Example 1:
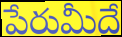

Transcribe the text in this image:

పేరుమీదే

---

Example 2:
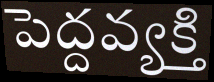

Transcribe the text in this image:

పెద్దవ్యక్తి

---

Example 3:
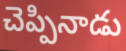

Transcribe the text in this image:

చెప్పినాడు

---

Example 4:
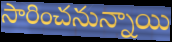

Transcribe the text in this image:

సారించనున్నాయి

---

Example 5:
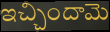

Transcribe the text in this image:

ఇచ్చిందామె